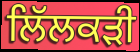
ਲਿੱਲਕੜੀ